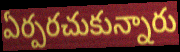
ఏర్పరచుకున్నారు